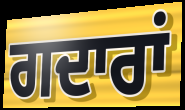
ਗਦਾਰਾਂ